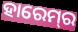
ହାରେମ୍‍ର